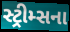
સ્ટ્રીમ્સના